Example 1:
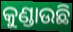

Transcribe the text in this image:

କୁଣ୍ଡାଉଛି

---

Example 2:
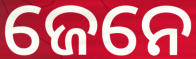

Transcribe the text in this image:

ଜେନେ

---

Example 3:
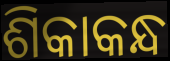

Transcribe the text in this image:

ଶିକାକନ୍ଧ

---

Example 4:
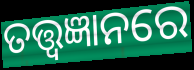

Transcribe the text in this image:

ତତ୍ତ୍ୱଜ୍ଞାନରେ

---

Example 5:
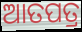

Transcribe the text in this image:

ଆତପତ୍ର